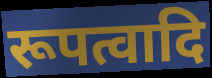
रूपत्वादि